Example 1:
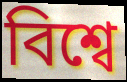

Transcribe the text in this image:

বিশ্বে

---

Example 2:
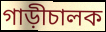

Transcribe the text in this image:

গাড়ীচালক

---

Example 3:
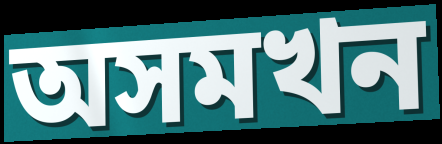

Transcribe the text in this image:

অসমখন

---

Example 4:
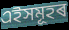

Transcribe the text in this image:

এইসমূহৰ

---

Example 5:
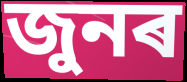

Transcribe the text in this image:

জুনৰ